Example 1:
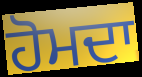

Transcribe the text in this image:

ਹੋਮਦਾ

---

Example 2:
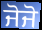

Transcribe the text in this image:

ਜੋਜੋ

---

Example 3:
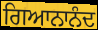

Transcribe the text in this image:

ਗਿਆਨਾਨੰਦ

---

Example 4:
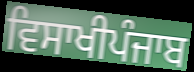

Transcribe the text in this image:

ਵਿਸਾਖੀਪੰਜਾਬ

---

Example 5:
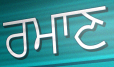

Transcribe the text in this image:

ਰਮਾਣ